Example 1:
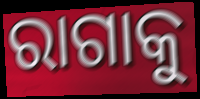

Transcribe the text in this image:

ରାଗାକୁ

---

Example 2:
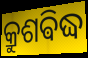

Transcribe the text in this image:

କ୍ରୁଶଵିଦ୍ଧ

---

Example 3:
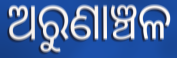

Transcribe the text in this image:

ଅରୁଣାଞ୍ଚଳ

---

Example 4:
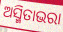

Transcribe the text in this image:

ଅସ୍ମିତାଭରା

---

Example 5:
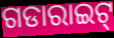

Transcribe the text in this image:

ଗଡାରାଇଟ୍